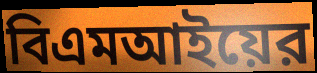
বিএমআইয়ের